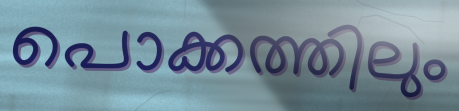
പൊക്കത്തിലും